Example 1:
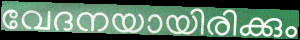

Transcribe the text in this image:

വേദനയായിരിക്കും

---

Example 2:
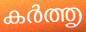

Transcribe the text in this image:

കർത്തൃ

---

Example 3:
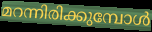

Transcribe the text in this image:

മറന്നിരിക്കുമ്പോൾ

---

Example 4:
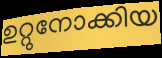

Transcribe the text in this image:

ഉറ്റുനോക്കിയ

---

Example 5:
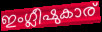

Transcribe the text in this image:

ഇംഗ്ലീഷുകാര്